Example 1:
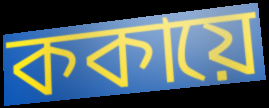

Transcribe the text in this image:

ককায়ে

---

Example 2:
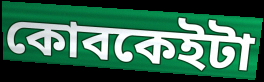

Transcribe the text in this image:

কোবকেইটা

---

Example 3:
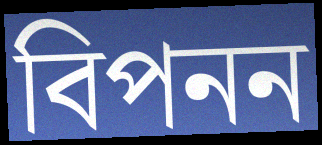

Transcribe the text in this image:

বিপনন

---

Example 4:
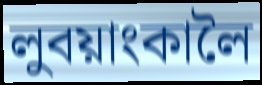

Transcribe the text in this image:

লুবয়াংকালৈ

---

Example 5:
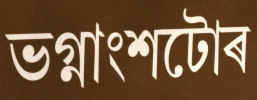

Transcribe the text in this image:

ভগ্নাংশটোৰ